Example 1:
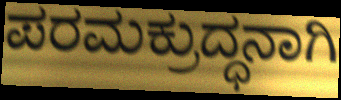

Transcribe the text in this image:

ಪರಮಕ್ರುದ್ಧನಾಗಿ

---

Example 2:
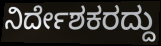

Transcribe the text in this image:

ನಿರ್ದೇಶಕರದ್ದು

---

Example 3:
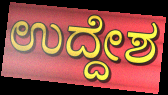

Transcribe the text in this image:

ಉದ್ದೇಶ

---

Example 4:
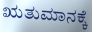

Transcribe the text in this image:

ಋತುಮಾನಕ್ಕೆ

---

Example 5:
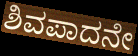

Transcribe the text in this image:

ಶಿವಪಾದನೇ